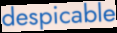
despicable